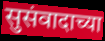
सुसंवादाच्या